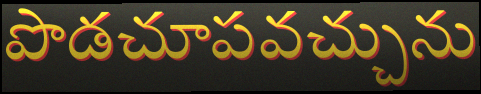
పొడచూపవచ్చును